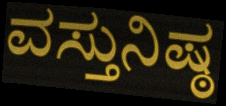
ವಸ್ತುನಿಷ್ಠ